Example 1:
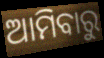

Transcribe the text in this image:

ଆମିବାରୁ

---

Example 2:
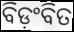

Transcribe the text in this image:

ବିଡ଼ଂବିତ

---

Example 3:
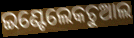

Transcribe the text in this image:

ଇଣ୍ଟେଲେକଚୁଆଲ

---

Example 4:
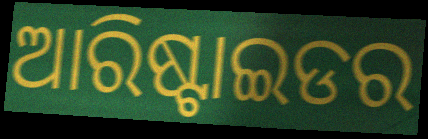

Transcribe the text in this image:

ଆରିଷ୍ଟାଇଡର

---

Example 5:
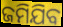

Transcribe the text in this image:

ଜମିଯିବ